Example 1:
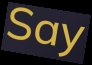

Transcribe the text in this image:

Say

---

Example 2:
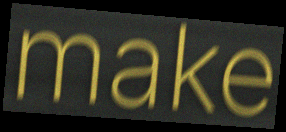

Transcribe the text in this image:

make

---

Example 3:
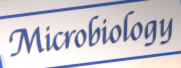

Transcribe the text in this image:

Microbiology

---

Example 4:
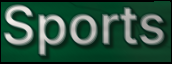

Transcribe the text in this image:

Sports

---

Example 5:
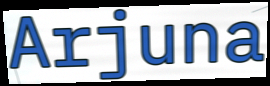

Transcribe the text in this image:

Arjuna